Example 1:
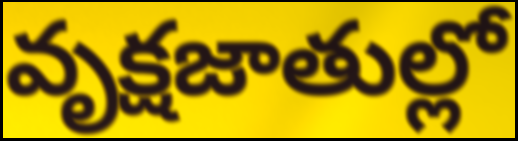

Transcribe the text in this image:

వృక్షజాతుల్లో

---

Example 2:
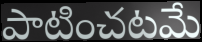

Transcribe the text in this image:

పాటించటమే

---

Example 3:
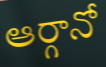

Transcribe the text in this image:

ఆర్గానో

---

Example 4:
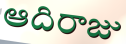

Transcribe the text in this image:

ఆదిరాజు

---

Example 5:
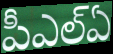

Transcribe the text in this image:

పీఎల్ఏ